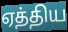
ஏத்திய